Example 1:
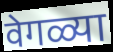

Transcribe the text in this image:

वेगळ्या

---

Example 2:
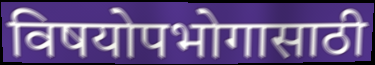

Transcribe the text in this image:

विषयोपभोगासाठी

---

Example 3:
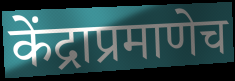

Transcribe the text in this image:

केंद्राप्रमाणेच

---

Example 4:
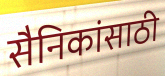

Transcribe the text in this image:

सैनिकांसाठी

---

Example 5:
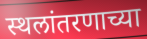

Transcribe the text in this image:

स्थलांतरणाच्या